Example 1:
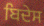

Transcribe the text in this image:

ਬਿਦੇਸ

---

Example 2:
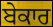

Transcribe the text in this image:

ਬੇਕਾਰ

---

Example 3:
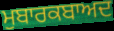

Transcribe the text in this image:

ਮੁਬਾਰਕਬਾਅਦ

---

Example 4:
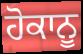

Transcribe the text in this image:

ਹੋਕਾਨੂ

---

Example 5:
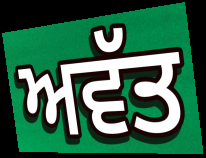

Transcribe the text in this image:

ਅਵੱਤ